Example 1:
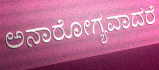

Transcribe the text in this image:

ಅನಾರೋಗ್ಯವಾದರೆ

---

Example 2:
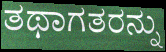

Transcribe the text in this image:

ತಥಾಗತರನ್ನು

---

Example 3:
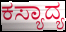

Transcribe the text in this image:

ಕಸ್ಯಾದ್ಯ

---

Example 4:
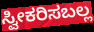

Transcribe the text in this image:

ಸ್ವೀಕರಿಸಬಲ್ಲ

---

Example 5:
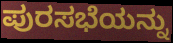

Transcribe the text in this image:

ಪುರಸಭೆಯನ್ನು